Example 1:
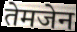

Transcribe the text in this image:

तेमजेन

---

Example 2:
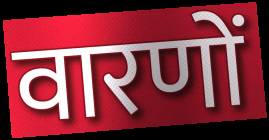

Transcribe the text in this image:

वारणों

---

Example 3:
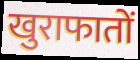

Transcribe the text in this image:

खुराफातों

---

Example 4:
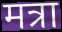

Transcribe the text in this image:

मत्रा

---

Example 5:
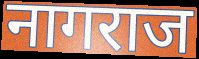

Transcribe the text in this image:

नागराज